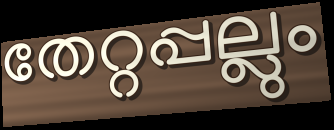
തേറ്റപ്പല്ലും